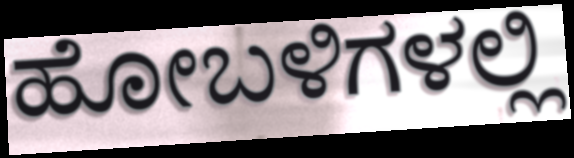
ಹೋಬಳಿಗಳಲ್ಲಿ